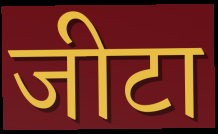
जीटा